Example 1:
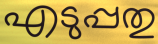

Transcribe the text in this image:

എടുപ്പതു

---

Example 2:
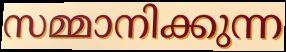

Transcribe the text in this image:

സമ്മാനിക്കുന്ന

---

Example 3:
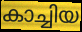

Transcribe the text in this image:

കാച്ചിയ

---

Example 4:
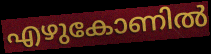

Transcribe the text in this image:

എഴുകോണിൽ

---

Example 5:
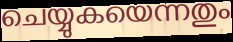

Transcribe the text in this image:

ചെയ്യുകയെന്നതും